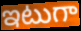
ఇటుగా